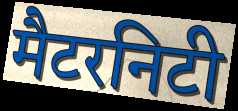
मैटरनिटी